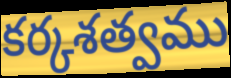
కర్కశత్వము